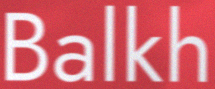
Balkh